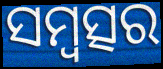
ସମ୍ବତ୍ସର